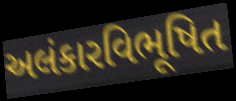
અલંકારવિભૂષિત